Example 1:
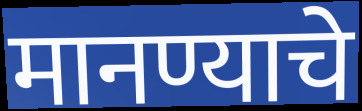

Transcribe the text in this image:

मानण्याचे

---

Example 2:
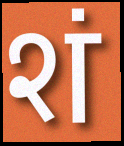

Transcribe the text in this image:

शं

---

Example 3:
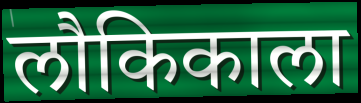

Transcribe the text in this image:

लौकिकाला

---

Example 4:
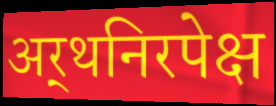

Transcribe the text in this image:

अर्थनिरपेक्ष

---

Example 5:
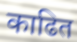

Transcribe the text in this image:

काढित